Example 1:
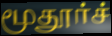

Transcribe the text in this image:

மூதூர்ச்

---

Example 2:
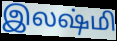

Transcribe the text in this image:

இலஷ்மி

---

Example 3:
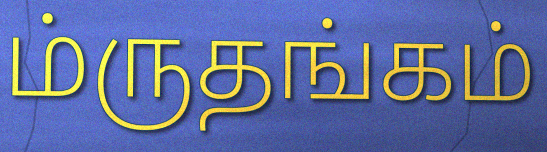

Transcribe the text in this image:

ம்ருதங்கம்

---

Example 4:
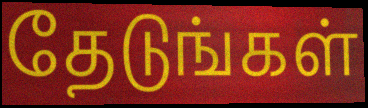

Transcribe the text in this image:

தேடுங்கள்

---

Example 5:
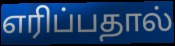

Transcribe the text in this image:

எரிப்பதால்